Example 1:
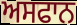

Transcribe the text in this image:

ਅਸਫਾਨ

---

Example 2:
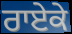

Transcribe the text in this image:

ਰਾਏਕੇ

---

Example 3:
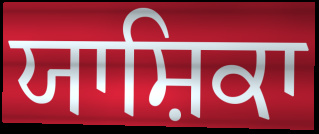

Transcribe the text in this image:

ਯਾਸ਼ਿਕਾ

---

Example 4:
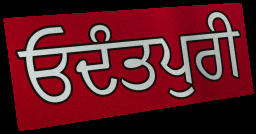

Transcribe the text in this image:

ਓਦੰਤਪੁਰੀ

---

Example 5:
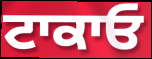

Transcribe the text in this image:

ਟਾਕਾਓ